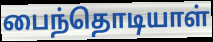
பைந்தொடியாள்